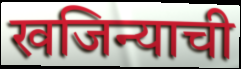
खजिन्याची